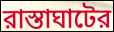
রাস্তাঘাটের